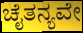
ಚೈತನ್ಯವೇ